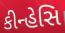
કીન્હેસિ